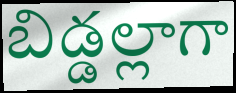
బిడ్డల్లాగా